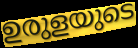
ഉരുളയുടെ